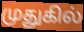
முதுகில்